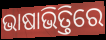
ଭାଷାଭିତ୍ତିରେ